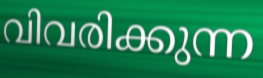
വിവരിക്കുന്ന